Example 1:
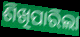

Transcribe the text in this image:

ଶିଖିପାରିଲା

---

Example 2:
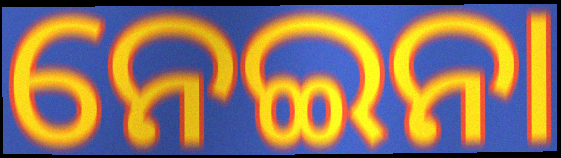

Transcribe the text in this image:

ନେଇନା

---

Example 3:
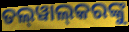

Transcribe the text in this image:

ତଲ୍‌ୱାଲ୍‌କରଙ୍କୁ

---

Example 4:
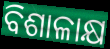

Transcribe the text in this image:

ବିଶାଳାକ୍ଷ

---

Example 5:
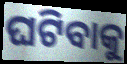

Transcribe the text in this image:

ଘଟିବାକୁ